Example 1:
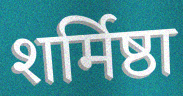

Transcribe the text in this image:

शर्मिष्ठा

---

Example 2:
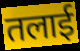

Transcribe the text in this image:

तलाई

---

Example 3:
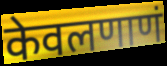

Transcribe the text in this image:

केवलणाणं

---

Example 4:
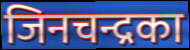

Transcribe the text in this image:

जिनचन्द्रका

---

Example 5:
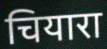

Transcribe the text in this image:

चियारा